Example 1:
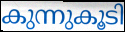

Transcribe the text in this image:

കുന്നുകൂടി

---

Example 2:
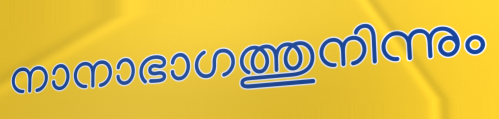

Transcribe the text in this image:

നാനാഭാഗത്തുനിന്നും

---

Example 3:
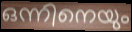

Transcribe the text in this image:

ഒന്നിനെയും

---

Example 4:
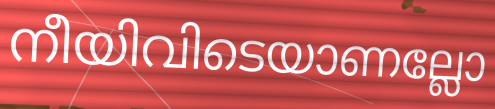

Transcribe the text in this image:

നീയിവിടെയാണല്ലോ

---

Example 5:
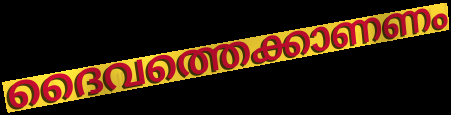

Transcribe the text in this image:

ദൈവത്തെക്കാണണം